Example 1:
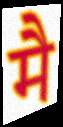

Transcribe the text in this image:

मै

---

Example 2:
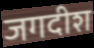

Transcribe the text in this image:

जगदीश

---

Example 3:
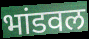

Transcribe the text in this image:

भांडवल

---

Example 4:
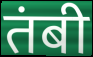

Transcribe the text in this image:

तंबी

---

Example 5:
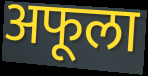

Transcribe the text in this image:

अफूला